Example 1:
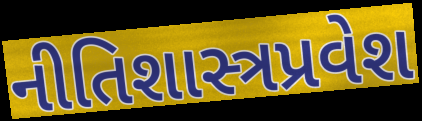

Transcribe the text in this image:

નીતિશાસ્ત્રપ્રવેશ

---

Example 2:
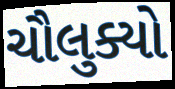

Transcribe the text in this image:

ચૌલુક્યો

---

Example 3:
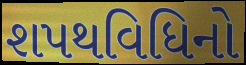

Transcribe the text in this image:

શપથવિધિનો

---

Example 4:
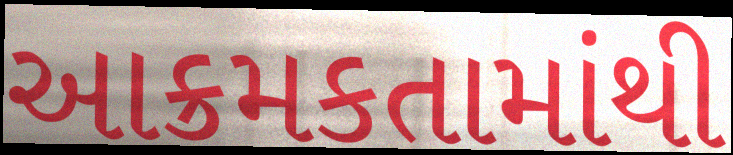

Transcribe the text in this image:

આક્રમકતામાંથી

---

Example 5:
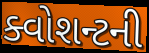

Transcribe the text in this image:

ક્વોશન્ટની